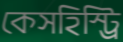
কেসহিস্ট্রি